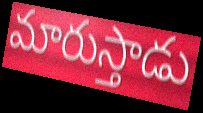
మారుస్తాడు